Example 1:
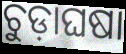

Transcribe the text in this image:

ଚୁଡ଼ାଘଷା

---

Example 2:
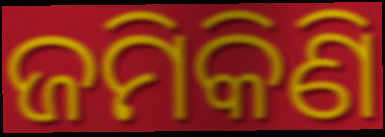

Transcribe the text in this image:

ଜମିକିଣି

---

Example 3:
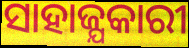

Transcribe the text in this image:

ସାହାଜ୍ଯକାରୀ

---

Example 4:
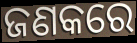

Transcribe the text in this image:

ଜଣକରେ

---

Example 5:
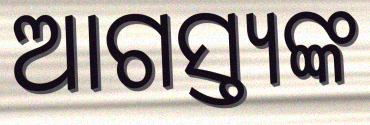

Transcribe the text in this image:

ଆଗସ୍ତ୍ୟଙ୍କ